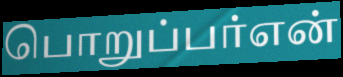
பொறுப்பர்என்